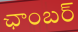
ఛాంబర్